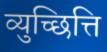
व्युच्छित्ति